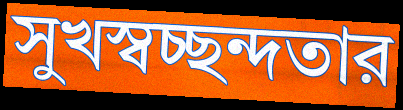
সুখস্বচ্ছন্দতার